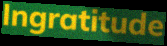
Ingratitude